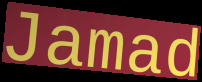
Jamad